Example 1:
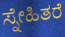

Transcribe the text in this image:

ಸ್ನೇಹಿತರೆ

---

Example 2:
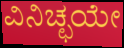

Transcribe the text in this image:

ವಿನಿಚ್ಛಯೇ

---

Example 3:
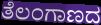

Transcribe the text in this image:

ತೆಲಂಗಾಣದ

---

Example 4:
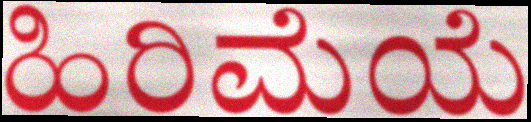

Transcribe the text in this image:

ಹಿರಿಮೆಯೆ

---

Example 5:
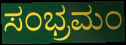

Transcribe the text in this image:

ಸಂಭ್ರಮಂ